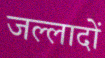
जल्लादों